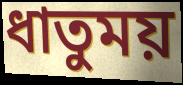
ধাতুময়